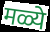
मळ्ये